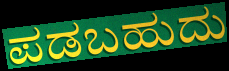
ಪಡಬಹುದು